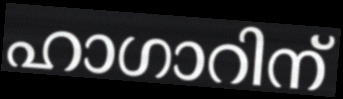
ഹാഗാറിന്